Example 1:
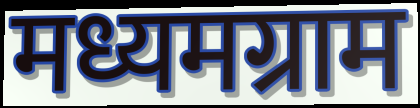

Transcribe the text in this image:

मध्यमग्राम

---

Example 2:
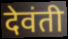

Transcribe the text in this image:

देवंती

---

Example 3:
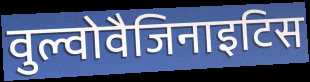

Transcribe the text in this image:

वुल्वोवैजिनाइटिस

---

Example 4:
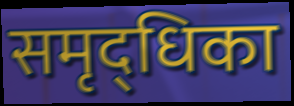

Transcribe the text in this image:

समृद्धिका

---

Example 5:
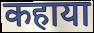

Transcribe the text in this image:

कहाया